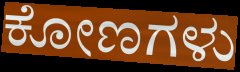
ಕೋಣಗಳು